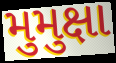
મુમુક્ષા